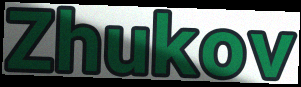
Zhukov